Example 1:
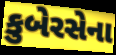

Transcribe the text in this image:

કુબેરસેના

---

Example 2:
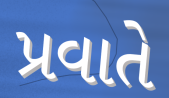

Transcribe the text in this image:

પ્રવાતે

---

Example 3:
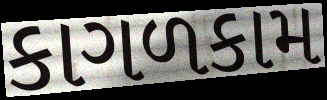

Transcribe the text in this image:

કાગળકામ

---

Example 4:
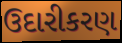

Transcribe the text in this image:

ઉદારીકરણ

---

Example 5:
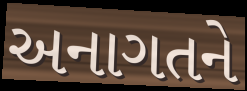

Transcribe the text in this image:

અનાગતને